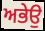
ਅਭੇਉ